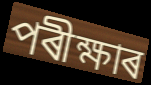
পৰীক্ষাৰ